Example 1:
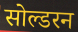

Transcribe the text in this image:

सोल्डरन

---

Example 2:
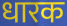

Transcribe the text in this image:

धारक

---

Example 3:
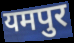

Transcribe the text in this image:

यमपुर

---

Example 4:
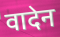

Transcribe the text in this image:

वादेन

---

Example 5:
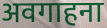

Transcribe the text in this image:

अवगाहना